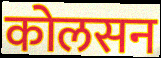
कोलसन